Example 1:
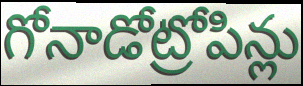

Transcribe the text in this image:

గోనాడోట్రోపిన్లు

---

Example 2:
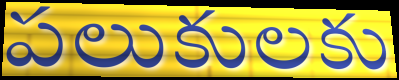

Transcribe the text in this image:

పలుకులకు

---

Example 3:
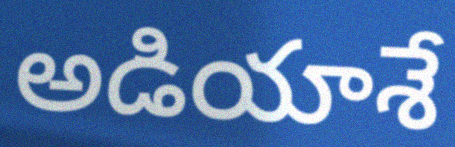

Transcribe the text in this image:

అడియాశే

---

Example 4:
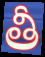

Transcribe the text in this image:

తీ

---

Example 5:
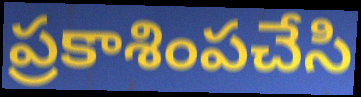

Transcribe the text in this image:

ప్రకాశింపచేసి